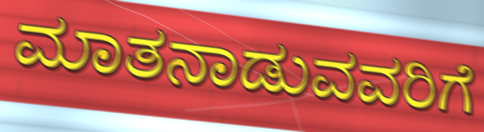
ಮಾತನಾಡುವವರಿಗೆ